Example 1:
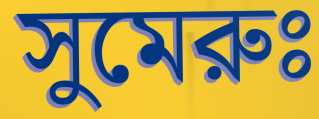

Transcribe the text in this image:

সুমেরুঃ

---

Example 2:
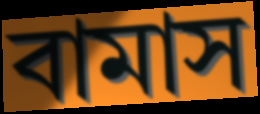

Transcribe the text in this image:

বামাস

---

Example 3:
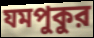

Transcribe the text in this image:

যমপুকুর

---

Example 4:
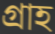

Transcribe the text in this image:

গ্রাহ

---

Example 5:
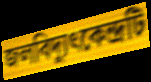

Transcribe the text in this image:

জলবিদ্যুৎকেন্দ্রটি